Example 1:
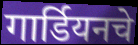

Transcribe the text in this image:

गार्डियनचे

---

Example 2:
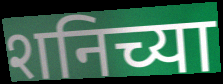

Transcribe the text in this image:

शनिच्या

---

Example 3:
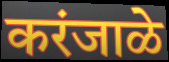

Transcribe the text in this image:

करंजाळे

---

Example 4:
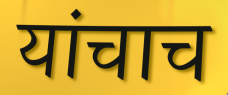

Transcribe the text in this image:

यांचाच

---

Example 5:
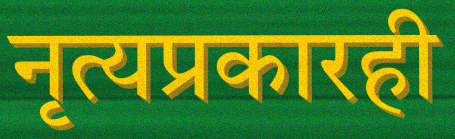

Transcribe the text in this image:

नृत्यप्रकारही